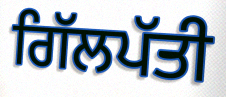
ਗਿੱਲਪੱਤੀ